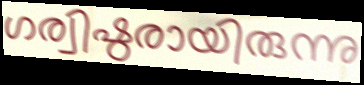
ഗര്വിഷ്ഠരായിരുന്നു